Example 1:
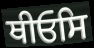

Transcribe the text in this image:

ਥੀਓਸਿ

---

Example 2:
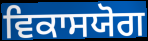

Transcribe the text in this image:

ਵਿਕਾਸਯੋਗ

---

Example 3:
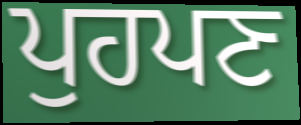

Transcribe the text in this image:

ਪੁਹਪਣ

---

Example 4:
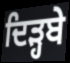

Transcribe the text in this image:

ਦਿੜ੍ਹਬੇ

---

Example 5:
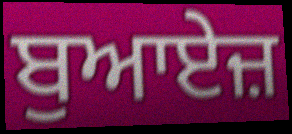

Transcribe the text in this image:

ਬੁਆਏਜ਼